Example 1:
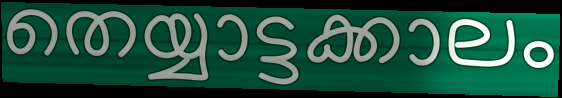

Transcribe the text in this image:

തെയ്യാട്ടക്കാലം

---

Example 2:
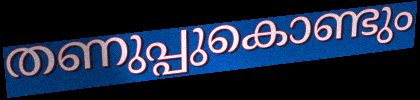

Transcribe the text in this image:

തണുപ്പുകൊണ്ടും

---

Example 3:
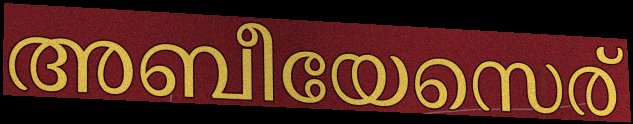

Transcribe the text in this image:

അബീയേസെര്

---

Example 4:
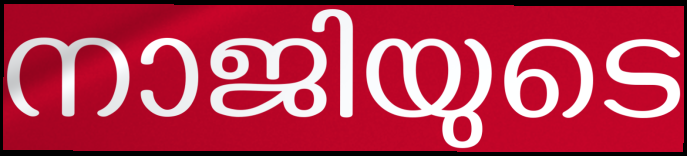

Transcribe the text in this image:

നാജിയുടെ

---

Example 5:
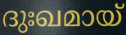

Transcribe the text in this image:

ദുഃഖമായ്